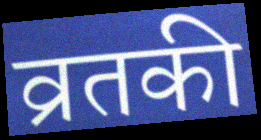
व्रतकी